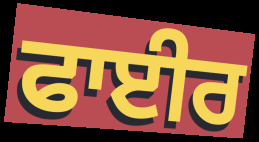
ਫਾਈਰ